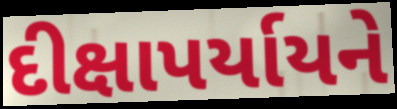
દીક્ષાપર્યાયને